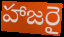
హాజరై